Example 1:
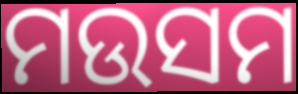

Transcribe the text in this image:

ମଉସମ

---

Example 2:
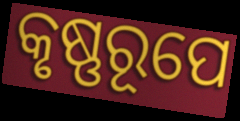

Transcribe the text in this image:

କୃଷ୍ଣରୂପେ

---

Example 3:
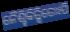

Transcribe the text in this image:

ନୈଶ୍ଚିକିତ୍ସିତୋଽପି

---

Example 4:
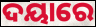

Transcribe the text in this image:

ଦୟାରେ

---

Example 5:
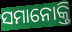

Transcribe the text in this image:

ସମାନୋକ୍ତି